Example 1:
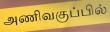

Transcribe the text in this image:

அணிவகுப்பில்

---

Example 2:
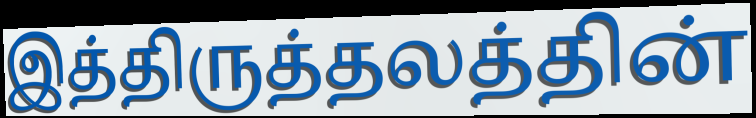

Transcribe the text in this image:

இத்திருத்தலத்தின்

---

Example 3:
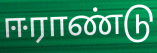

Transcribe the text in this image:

ஈராண்டு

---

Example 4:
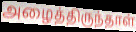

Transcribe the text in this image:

அழைத்திருந்தாள்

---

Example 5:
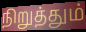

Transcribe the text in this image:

நிறுத்தும்